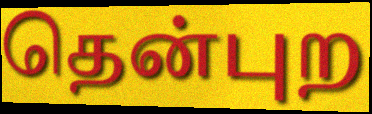
தென்புற